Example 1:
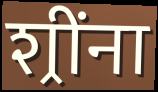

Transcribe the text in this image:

श्रींना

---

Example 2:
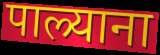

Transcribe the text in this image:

पाल्याना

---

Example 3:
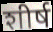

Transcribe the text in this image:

शीर्ष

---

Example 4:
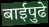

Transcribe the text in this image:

बाईपुढे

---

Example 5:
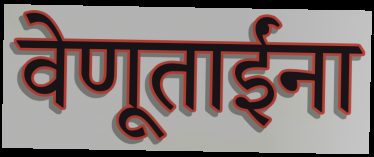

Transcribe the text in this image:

वेणूताईंना